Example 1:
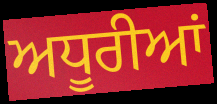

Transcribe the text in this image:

ਅਧੂਰੀਆਂ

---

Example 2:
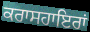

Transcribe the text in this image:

ਕਰਾਸਹਾਇਰਾਂ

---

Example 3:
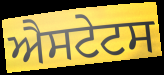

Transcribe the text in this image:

ਐਸਟੇਟਸ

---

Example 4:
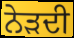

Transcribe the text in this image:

ਨੇੜਦੀ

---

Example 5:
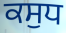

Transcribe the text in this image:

ਕਸੁਧ